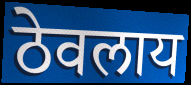
ठेवलाय